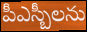
పీఎస్బీలను